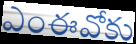
ఎంఈవోకు